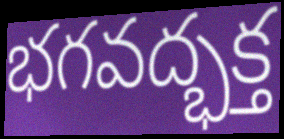
భగవద్భక్త